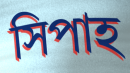
সিপাহ